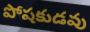
పోషకుడవు